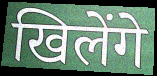
खिलेंगे